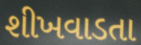
શીખવાડતા